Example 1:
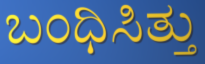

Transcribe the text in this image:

ಬಂಧಿಸಿತ್ತು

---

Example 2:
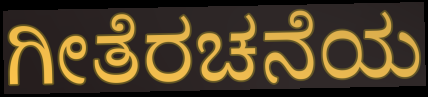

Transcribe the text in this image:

ಗೀತೆರಚನೆಯ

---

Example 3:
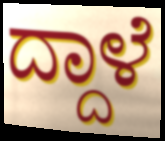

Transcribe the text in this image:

ದ್ದಾಳೆ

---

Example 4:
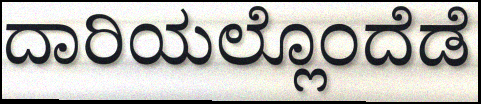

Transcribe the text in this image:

ದಾರಿಯಲ್ಲೊಂದೆಡೆ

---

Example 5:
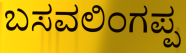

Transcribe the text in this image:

ಬಸವಲಿಂಗಪ್ಪ